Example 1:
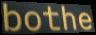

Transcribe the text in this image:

bothe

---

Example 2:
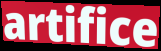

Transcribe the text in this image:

artifice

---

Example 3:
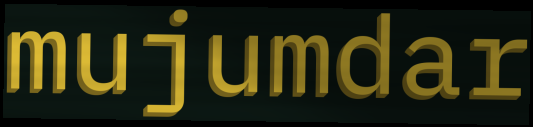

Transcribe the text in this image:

mujumdar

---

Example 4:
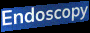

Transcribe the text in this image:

Endoscopy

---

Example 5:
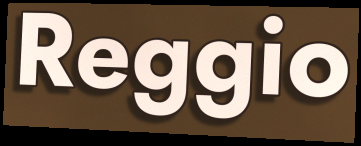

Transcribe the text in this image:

Reggio